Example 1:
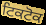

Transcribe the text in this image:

ਟਿਕਟੋਕ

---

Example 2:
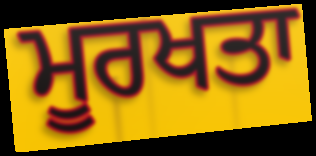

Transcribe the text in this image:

ਮੂਰਖਤਾ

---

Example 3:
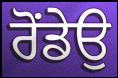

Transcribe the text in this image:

ਰੋਂਡੇਉ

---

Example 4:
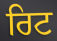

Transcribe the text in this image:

ਰਿਟ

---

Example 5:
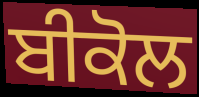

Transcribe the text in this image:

ਬੀਕੋਲ